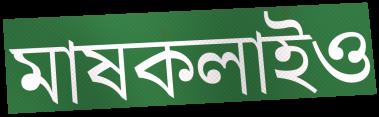
মাষকলাইও